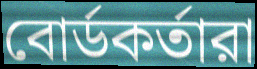
বোর্ডকর্তারা